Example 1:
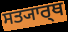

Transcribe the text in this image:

ਸਤ੍ਯਾਰ੍ਥ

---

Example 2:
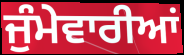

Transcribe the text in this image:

ਜੁੰਮੇਵਾਰੀਆਂ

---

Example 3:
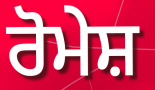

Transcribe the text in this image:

ਰੋਮੇਸ਼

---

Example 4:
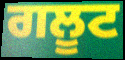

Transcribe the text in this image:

ਗਲੂਟ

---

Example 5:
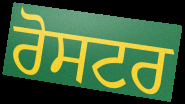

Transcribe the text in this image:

ਰੋਸਟਰ